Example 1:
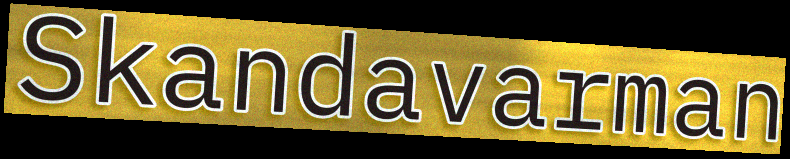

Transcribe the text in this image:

Skandavarman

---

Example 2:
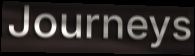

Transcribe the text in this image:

Journeys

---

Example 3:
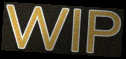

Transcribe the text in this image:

WIP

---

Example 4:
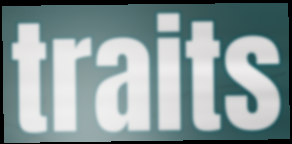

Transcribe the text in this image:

traits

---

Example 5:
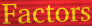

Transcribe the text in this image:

Factors